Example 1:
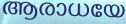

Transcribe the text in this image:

ആരാധയേ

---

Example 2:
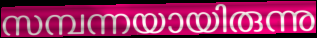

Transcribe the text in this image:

സമ്പന്നയായിരുന്നു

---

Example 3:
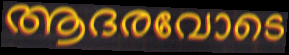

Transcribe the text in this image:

ആദരവോടെ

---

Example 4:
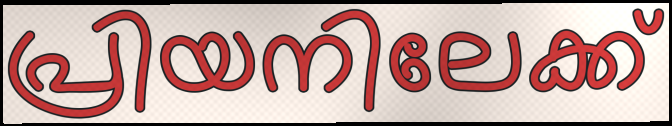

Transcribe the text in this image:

പ്രിയനിലേക്ക്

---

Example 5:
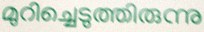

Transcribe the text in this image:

മുറിച്ചെടുത്തിരുന്നു